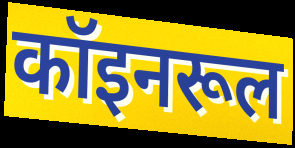
कॉइनरूल